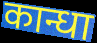
कान्धा